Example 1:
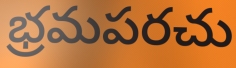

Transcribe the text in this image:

భ్రమపరచు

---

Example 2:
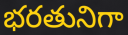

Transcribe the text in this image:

భరతునిగా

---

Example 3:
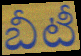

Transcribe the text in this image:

బీటీ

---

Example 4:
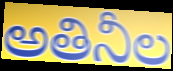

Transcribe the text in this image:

అతినీల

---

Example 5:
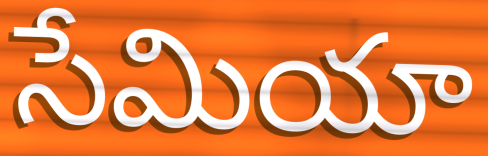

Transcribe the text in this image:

సేమియా